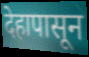
देहापासून